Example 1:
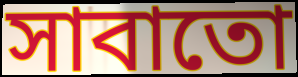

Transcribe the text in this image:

সাবাতো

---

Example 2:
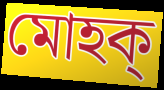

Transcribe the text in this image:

মোহক্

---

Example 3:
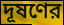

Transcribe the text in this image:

দূষণের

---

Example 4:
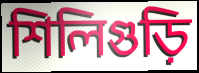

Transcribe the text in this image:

শিলিগুড়ি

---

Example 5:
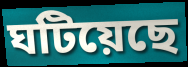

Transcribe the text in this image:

ঘটিয়েছে